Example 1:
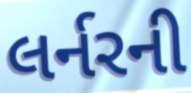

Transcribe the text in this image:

લર્નરની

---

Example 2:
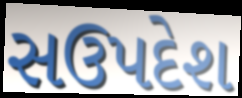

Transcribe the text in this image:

સઉપદેશ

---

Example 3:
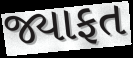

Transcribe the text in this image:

જ્યાફત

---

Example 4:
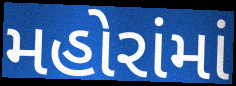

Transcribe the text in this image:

મહોરાંમાં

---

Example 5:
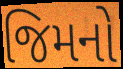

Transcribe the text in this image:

જિમનો